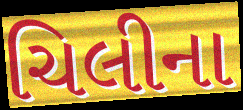
ચિલીના